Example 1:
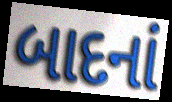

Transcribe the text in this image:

બાદનાં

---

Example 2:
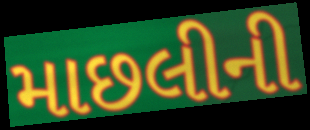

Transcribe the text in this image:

માછલીની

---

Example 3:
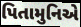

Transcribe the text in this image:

પિતામુનિએ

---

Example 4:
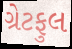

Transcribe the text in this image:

ગ્રેટફુલ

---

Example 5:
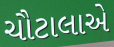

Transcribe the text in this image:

ચૌટાલાએ